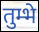
तुम्भे